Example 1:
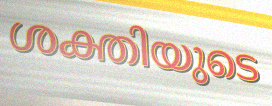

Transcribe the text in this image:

ശക്തിയുടെ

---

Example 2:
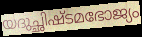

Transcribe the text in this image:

യദുച്ഛിഷ്ടമഭോജ്യം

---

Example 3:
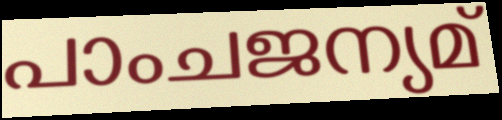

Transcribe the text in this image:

പാംചജന്യമ്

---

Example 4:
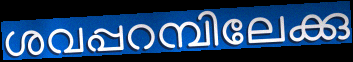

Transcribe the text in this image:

ശവപ്പറമ്പിലേക്കു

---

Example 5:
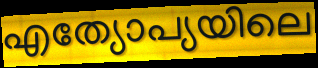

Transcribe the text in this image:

എത്യോപ്യയിലെ